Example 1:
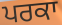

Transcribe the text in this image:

ਪਰਕਾ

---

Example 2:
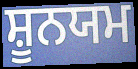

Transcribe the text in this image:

ਸ਼ੂਨਯਮ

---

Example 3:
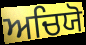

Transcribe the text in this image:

ਅਚਿਯੋ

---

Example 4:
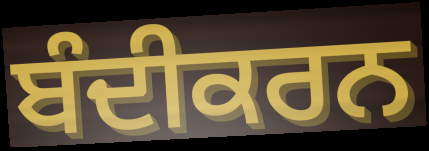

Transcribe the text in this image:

ਬੰਦੀਕਰਨ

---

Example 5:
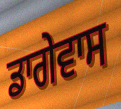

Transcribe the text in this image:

ਡਾਗੇਵਾਸ